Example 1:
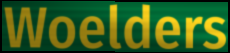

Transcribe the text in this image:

Woelders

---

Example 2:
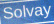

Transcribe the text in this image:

Solvay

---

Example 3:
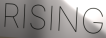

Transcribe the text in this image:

RISING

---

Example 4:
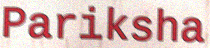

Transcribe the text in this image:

Pariksha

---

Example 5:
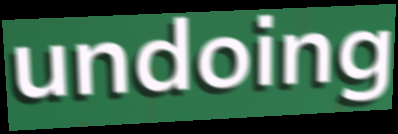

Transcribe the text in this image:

undoing